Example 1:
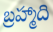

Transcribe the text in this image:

బ్రహ్మాది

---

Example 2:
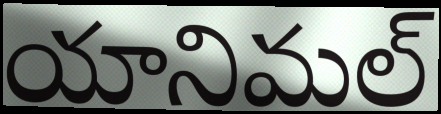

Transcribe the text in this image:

యానిమల్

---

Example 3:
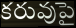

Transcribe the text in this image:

కరువుపై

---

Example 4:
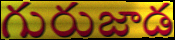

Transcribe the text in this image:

గురుజాడ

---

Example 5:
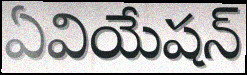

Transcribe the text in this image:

ఏవియేషన్